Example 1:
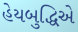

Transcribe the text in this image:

હેયબુદ્ધિએ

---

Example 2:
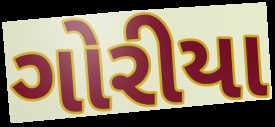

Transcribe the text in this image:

ગોરીયા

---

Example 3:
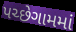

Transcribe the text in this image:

પચ્છેગામમાં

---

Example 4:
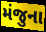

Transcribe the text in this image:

મંજુના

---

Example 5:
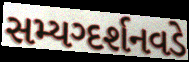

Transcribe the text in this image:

સમ્યગ્દર્શનવડે